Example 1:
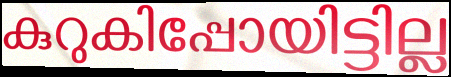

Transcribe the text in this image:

കുറുകിപ്പോയിട്ടില്ല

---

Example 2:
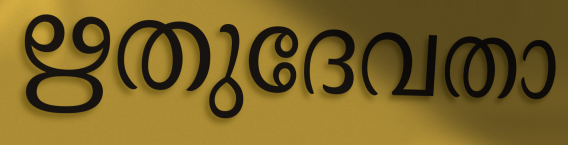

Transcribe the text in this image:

ഋതുദേവതാ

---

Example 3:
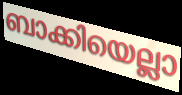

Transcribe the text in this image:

ബാക്കിയെല്ലാ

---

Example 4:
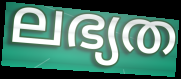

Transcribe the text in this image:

ലഭ്യത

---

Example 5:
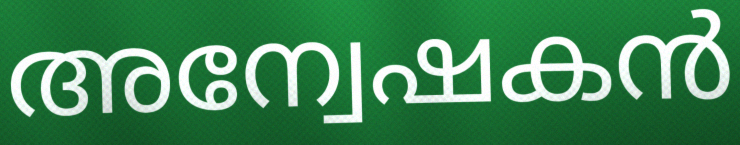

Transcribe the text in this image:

അന്വേഷകൻ